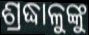
ଶ୍ରଦ୍ଧାଳୁଙ୍କୁ